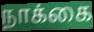
நாக்கை